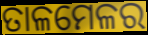
ତାଳମେଳର